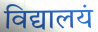
विद्यालयं